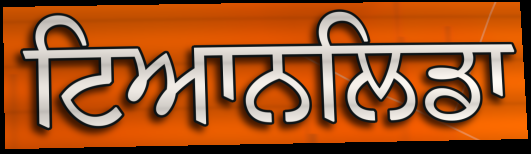
ਟਿਆਨਲਿਡਾ